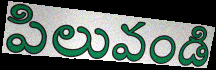
పిలువండి